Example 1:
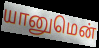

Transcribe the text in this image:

யானுமென்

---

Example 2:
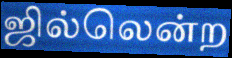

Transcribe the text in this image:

ஜில்லென்ற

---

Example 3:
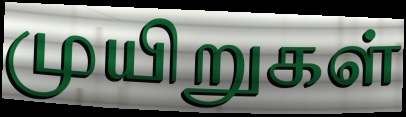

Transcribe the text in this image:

முயிறுகள்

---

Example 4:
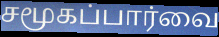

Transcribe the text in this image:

சமூகப்பார்வை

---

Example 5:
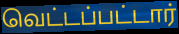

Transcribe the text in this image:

வெட்டப்பட்டார்